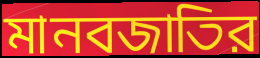
মানবজাতির